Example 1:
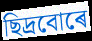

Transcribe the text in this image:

ছিদ্ৰবোৰে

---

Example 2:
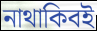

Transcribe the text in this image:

নাথাকিবই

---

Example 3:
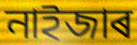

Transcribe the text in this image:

নাইজাৰ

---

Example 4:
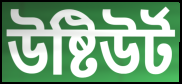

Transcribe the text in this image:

উষ্টিউৰ্ট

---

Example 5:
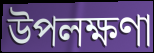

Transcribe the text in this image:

উপলক্ষণা